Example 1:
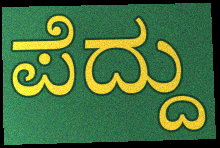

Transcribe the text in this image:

ಪೆದ್ದು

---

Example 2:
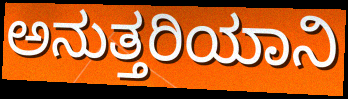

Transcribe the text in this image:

ಅನುತ್ತರಿಯಾನಿ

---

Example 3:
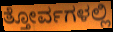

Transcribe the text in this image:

ತ್ತೋರ್ವಗಳಲ್ಲಿ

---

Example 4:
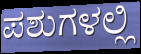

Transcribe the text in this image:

ಪಶುಗಳಲ್ಲಿ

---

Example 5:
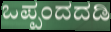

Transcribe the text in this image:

ಒಪ್ಪಂದದಡಿ